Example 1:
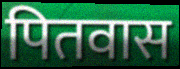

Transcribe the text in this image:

पितवास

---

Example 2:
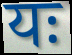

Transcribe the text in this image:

यः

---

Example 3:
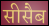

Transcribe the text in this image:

सीसैब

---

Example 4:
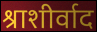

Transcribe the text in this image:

श्राशीर्वाद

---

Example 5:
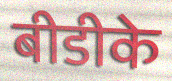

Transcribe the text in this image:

बीडीके